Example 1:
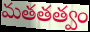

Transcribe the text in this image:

మతతత్వం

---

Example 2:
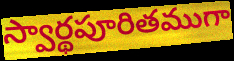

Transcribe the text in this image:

స్వార్థపూరితముగా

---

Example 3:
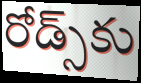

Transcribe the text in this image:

రోడ్స్‌కు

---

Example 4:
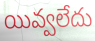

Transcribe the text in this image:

యివ్వలేదు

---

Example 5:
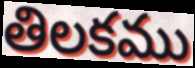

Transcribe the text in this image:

తిలకము